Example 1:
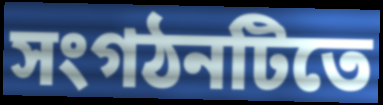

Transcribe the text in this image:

সংগঠনটিতে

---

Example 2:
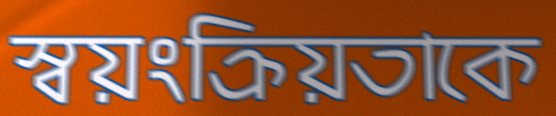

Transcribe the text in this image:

স্বয়ংক্রিয়তাকে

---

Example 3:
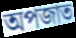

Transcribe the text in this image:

অপজাত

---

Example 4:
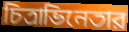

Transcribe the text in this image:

চিত্রাভিনেতার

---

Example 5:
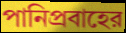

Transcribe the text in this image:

পানিপ্রবাহের